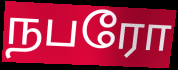
நபரோ